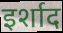
इर्शाद